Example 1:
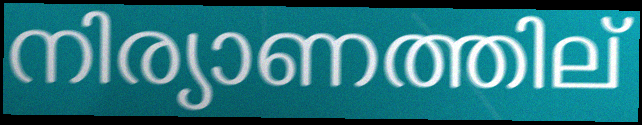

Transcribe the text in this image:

നിര്യാണത്തില്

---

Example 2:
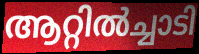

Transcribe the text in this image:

ആറ്റിൽച്ചാടി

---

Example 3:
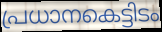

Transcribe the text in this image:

പ്രധാനകെട്ടിടം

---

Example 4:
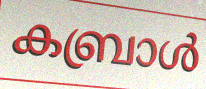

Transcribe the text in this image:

കബ്രാൾ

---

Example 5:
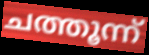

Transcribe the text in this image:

ചത്തൂന്ന്